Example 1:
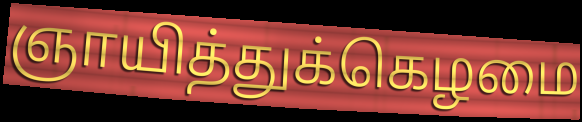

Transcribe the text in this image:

ஞாயித்துக்கெழமை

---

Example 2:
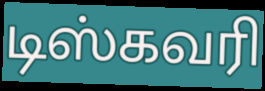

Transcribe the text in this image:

டிஸ்கவரி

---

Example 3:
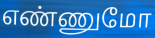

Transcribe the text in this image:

எண்ணுமோ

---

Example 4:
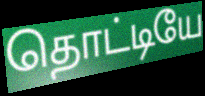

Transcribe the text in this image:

தொட்டியே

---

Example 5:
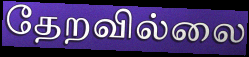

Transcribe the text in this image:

தேறவில்லை